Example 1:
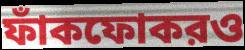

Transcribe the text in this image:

ফাঁকফোকরও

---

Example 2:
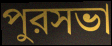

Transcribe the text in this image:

পুরসভা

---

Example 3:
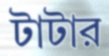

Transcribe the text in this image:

টাটার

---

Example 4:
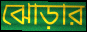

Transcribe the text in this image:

ঝোড়ার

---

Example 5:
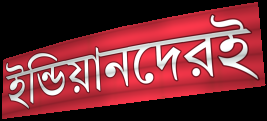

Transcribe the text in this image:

ইন্ডিয়ানদেরই